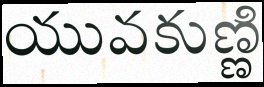
యువకుణ్ణి